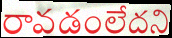
రావడంలేదని